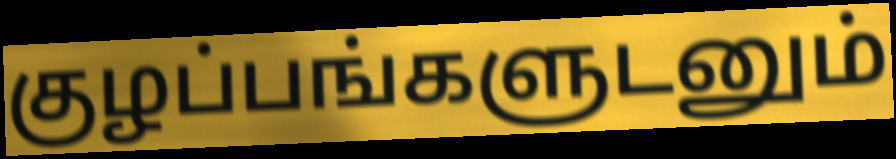
குழப்பங்களுடனும்